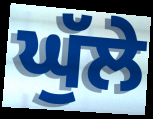
ਘੁੱਲੇ